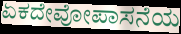
ಏಕದೇವೋಪಾಸನೆಯ